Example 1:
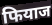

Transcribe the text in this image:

फियाज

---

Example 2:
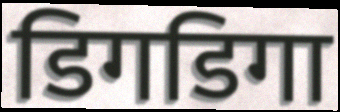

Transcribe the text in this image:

डिगडिगा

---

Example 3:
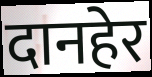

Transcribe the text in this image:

दानहेर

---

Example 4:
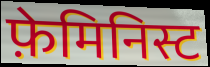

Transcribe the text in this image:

फ़ेमिनिस्ट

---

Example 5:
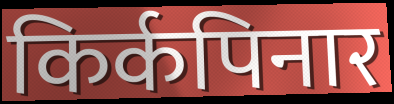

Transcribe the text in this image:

किर्कपिनार